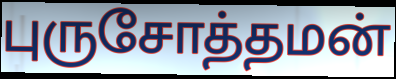
புருசோத்தமன்